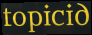
topicid